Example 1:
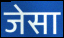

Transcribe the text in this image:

जेसा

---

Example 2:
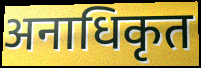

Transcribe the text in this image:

अनाधिकृत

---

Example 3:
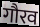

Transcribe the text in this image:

गौरव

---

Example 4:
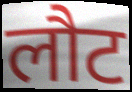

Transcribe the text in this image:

लौट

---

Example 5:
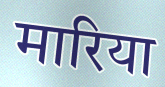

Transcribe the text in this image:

मारिया